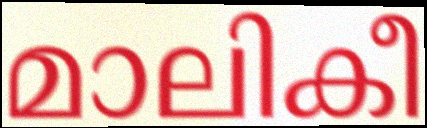
മാലികീ